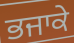
ਭਜਾਕੇ